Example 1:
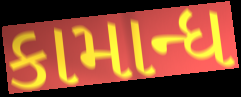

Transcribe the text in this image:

કામાન્ધ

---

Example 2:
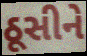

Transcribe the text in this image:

ઠૂસીને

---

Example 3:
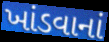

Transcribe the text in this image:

ખાંડવાનાં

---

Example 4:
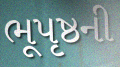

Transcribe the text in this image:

ભૂપૃષ્ઠની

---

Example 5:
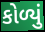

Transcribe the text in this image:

કોળ્યું